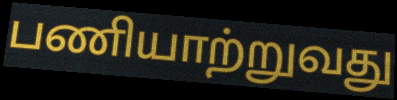
பணியாற்றுவது